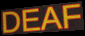
DEAF